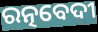
ରତ୍ନବେଦୀ